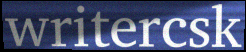
writercsk